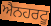
ਐਨਹਰਟੂ